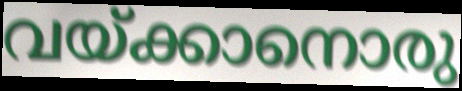
വയ്ക്കാനൊരു